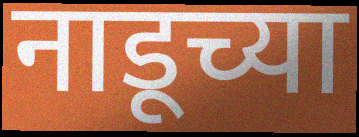
नाडूच्या